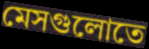
মেসগুলোতে